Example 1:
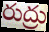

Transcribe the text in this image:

రుద్రు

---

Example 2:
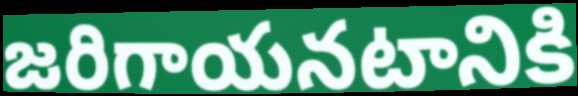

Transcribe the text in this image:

జరిగాయనటానికి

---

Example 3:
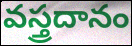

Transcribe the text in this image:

వస్త్రదానం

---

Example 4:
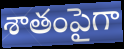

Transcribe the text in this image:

శాతంపైగా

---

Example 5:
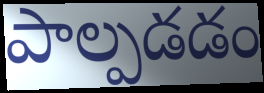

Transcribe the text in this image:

పాల్పడడం